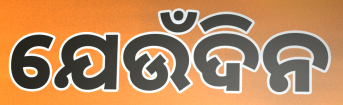
ଯେଉଁଦିନ